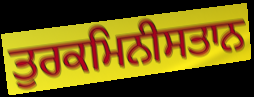
ਤੁਰਕਮਿਨੀਸਤਾਨ